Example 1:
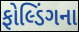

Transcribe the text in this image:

ફોલ્ડિંગના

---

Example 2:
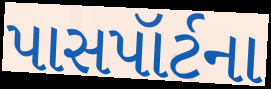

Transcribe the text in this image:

પાસપૉર્ટના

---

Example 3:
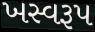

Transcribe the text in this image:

ખસ્વરૂપ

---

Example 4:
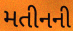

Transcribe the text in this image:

મતીનની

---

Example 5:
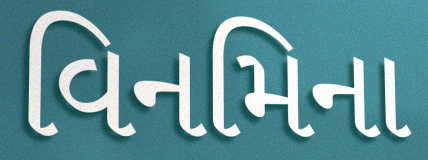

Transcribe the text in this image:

વિનમિના